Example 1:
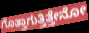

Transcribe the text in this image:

ಗೊತ್ತಾಗುತ್ತಿತ್ತೇನೋ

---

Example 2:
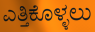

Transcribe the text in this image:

ಎತ್ತಿಕೊಳ್ಳಲು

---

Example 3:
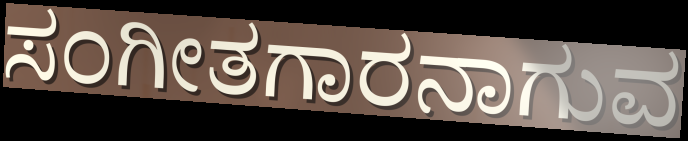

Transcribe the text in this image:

ಸಂಗೀತಗಾರನಾಗುವ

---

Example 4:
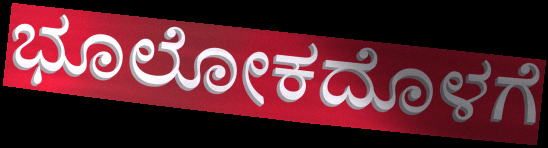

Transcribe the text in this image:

ಭೂಲೋಕದೊಳಗೆ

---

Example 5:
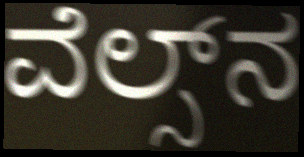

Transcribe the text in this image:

ವೆಲ್ಸ್‌ನ